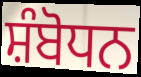
ਸ਼ੰਬੋਧਨ